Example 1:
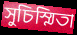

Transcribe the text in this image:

সুচিস্মিতা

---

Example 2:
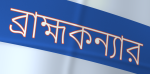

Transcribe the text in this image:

ব্রাহ্মকন্যার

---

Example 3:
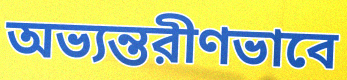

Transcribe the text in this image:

অভ্যন্তরীণভাবে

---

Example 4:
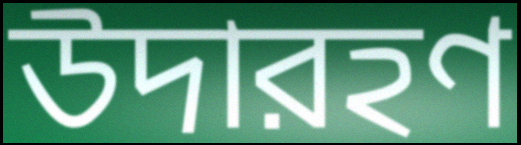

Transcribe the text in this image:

উদারহণ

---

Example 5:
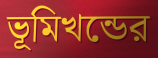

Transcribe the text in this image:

ভূমিখন্ডের